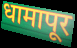
धामापूर